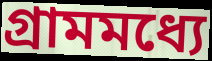
গ্রামমধ্যে